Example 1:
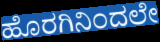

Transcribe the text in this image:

ಹೊರಗಿನಿಂದಲೇ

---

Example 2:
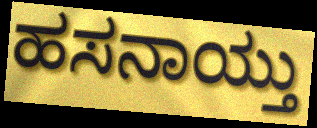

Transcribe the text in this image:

ಹಸನಾಯ್ತು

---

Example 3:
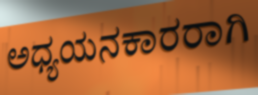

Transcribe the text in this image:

ಅಧ್ಯಯನಕಾರರಾಗಿ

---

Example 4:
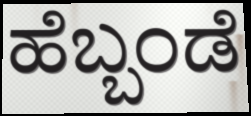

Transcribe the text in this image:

ಹೆಬ್ಬಂಡೆ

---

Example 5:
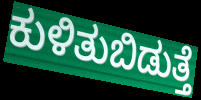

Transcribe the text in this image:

ಕುಳಿತುಬಿಡುತ್ತೆ